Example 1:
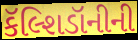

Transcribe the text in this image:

કૅલ્શિડૉનીની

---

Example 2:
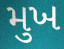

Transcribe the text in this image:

મુખ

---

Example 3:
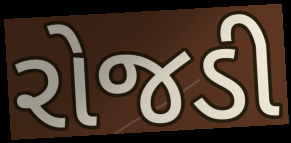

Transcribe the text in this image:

રોજડી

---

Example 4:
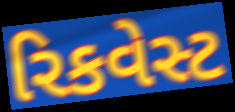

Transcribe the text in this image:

રિકવેસ્ટ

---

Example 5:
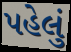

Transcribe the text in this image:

પહેલું